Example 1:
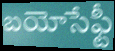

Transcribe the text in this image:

బయోసేఫ్టీ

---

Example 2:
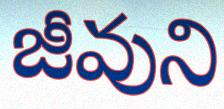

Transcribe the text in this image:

జీవుని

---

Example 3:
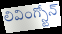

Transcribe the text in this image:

లివింగ్స్టోన్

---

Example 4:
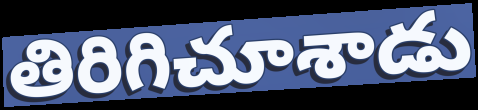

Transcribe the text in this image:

తిరిగిచూశాడు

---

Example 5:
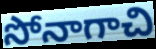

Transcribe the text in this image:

సోనాగాచి